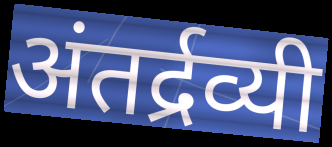
अंतर्द्रव्यी